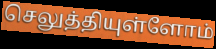
செலுத்தியுள்ளோம்